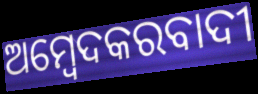
ଅମ୍ବେଦକରବାଦୀ